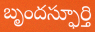
బృందస్ఫూర్తి